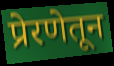
प्रेरणेतून